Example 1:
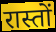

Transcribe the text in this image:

रास्तों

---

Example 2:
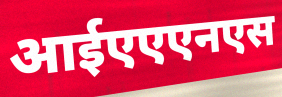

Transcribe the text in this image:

आईएएएनएस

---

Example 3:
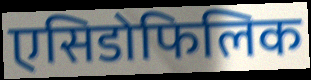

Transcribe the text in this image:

एसिडोफिलिक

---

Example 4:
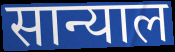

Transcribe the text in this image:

सान्याल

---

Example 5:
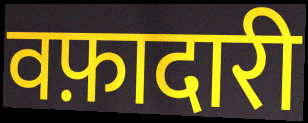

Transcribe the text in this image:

वफ़ादारी